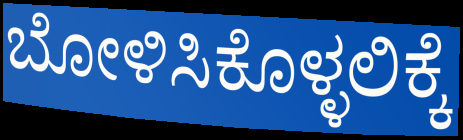
ಬೋಳಿಸಿಕೊಳ್ಳಲಿಕ್ಕೆ